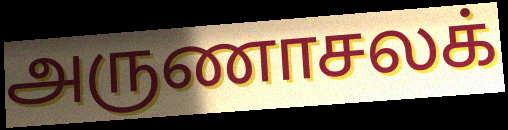
அருணாசலக்